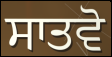
ਸਾਤਵੋ